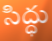
సిద్ధు